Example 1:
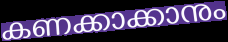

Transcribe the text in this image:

കണക്കാക്കാനും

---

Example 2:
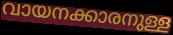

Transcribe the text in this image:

വായനക്കാരനുള്ള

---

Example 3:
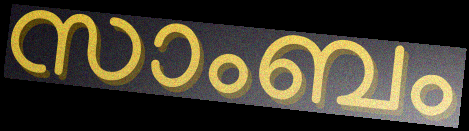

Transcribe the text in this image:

സാംബം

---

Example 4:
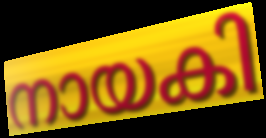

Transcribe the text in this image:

നായകി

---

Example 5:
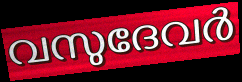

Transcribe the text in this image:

വസുദേവർ